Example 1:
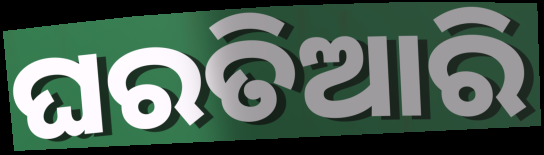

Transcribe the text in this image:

ଘରତିଆରି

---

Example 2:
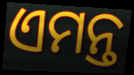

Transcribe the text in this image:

ଏମନ୍ତ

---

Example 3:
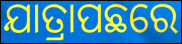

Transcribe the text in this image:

ଯାତ୍ରାପଛରେ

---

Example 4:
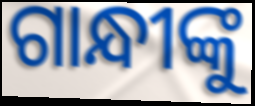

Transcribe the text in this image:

ଗାନ୍ଧୀଙ୍କୁ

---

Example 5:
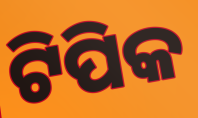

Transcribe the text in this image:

ଟିପିକ